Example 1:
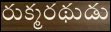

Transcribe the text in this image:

రుక్మరథుడు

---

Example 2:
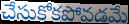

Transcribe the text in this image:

చేసుకోకపోవడమే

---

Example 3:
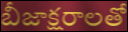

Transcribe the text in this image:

బీజాక్షరాలతో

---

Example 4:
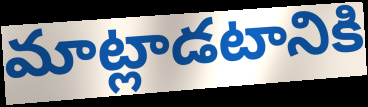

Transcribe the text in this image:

మాట్లాడటానికి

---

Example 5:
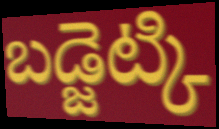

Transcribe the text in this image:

బడ్జెట్కి